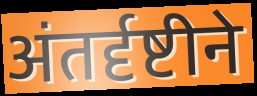
अंतर्दृष्टीने